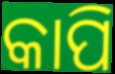
କାପି